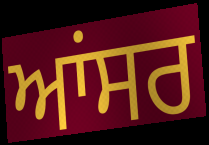
ਆਂਸਰ